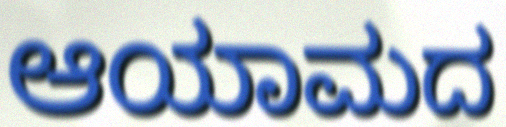
ಆಯಾಮದ